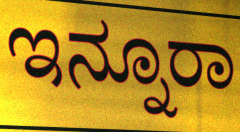
ಇನ್ನೂರಾ